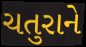
ચતુરાને